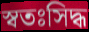
স্বতঃসিদ্ধ